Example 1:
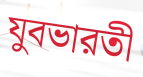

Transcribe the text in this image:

যুবভারতী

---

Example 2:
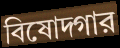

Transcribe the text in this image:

বিষোদ্গার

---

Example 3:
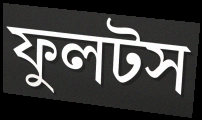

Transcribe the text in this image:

ফুলটস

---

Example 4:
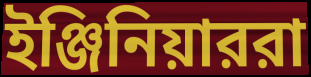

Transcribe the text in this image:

ইঞ্জিনিয়াররা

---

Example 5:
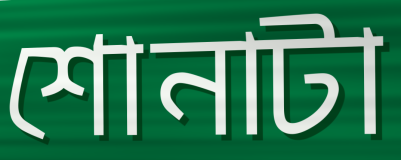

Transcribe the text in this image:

শোনাটা